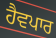
ਹੈਵਪਾਰ